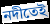
নদীতেই